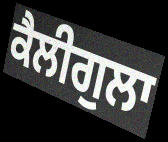
ਕੈਲੀਗੁਲਾ